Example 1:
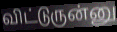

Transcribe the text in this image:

விட்டுருன்னு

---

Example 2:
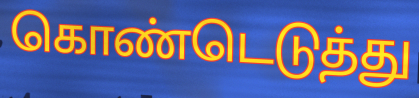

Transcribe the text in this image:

கொண்டெடுத்து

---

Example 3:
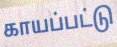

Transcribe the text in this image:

காயப்பட்டு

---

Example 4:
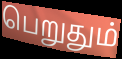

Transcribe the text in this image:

பெறுதும்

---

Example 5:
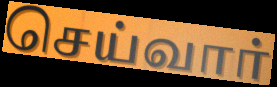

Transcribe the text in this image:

செய்வார்